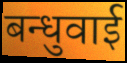
बन्धुवाई